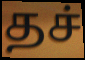
தச்